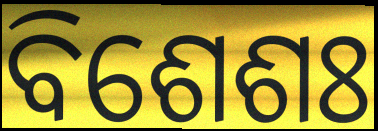
ବିଶେଶଃ